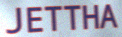
JETTHA